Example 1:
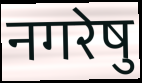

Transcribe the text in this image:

नगरेषु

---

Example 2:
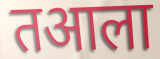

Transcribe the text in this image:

तआला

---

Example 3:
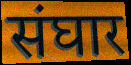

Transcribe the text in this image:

संघार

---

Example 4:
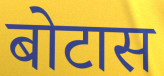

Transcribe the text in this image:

बोटास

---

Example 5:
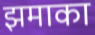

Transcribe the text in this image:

झमाका